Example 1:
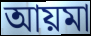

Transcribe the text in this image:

আয়মা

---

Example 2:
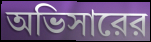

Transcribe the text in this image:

অভিসারের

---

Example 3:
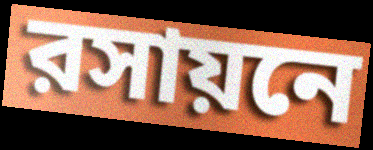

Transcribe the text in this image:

রসায়নে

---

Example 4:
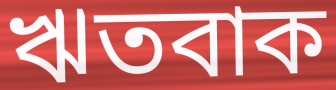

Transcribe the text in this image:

ঋতবাক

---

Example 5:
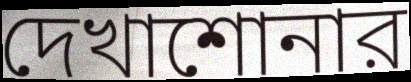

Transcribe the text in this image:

দেখাশোনার